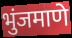
भुंजमाणे